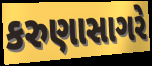
કરુણાસાગરે